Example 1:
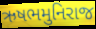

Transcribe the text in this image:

ઋષભમુનિરાજ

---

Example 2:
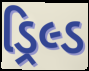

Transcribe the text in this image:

ડ્રિલ્ડ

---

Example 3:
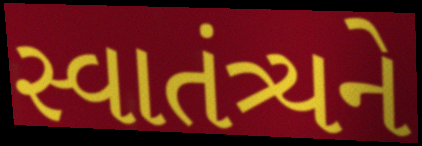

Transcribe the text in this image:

સ્વાતંત્ર્યને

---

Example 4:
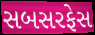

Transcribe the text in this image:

સબસરફેસ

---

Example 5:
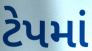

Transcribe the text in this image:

ટેપમાં